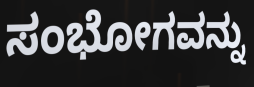
ಸಂಭೋಗವನ್ನು